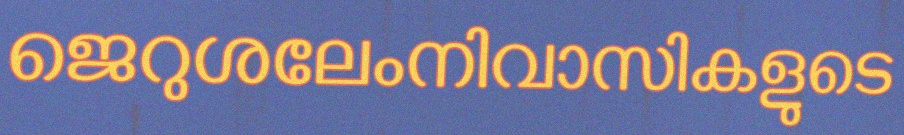
ജെറുശലേംനിവാസികളുടെ